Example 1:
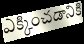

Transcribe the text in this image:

ఎక్కించడానికి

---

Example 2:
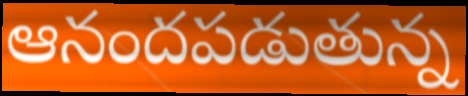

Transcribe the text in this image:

ఆనందపడుతున్న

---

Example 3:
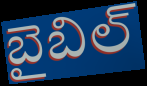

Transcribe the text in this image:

బైబిల్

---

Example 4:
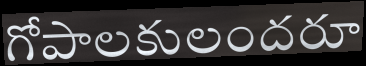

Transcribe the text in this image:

గోపాలకులందరూ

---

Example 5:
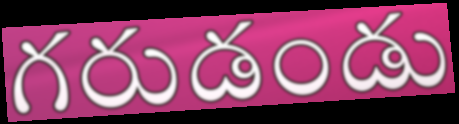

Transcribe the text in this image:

గరుడండు